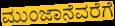
ಮುಂಜಾನೆವರೆಗೆ